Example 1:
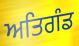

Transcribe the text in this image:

ਅਤਿਗੰਡ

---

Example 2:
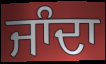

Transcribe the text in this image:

ਜਾੰਦਾ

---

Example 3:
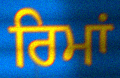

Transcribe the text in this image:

ਰਿਮਾਂ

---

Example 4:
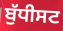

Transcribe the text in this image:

ਬੁੱਧੀਸਟ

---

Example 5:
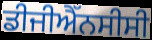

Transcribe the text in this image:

ਡੀਜੀਐੱਨਸੀਸੀ